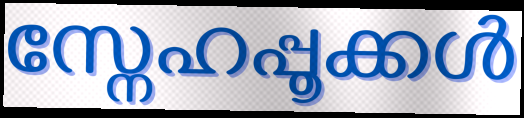
സ്നേഹപ്പൂക്കൾ